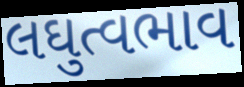
લઘુત્વભાવ